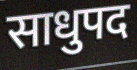
साधुपद